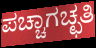
ಪಚ್ಚಾಗಚ್ಛತಿ